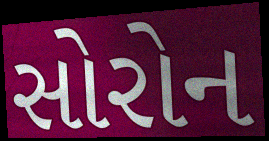
સોરોન